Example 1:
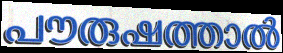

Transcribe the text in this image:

പൗരുഷത്താൽ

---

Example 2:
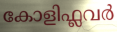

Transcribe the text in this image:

കോളിഫ്ലവർ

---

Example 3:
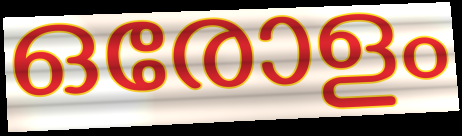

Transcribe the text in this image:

ഒരോളം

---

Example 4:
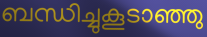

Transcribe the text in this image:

ബന്ധിച്ചുകൂടാഞ്ഞു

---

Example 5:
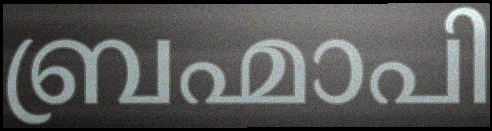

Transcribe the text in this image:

ബ്രഹ്മാപി